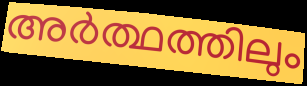
അർത്ഥത്തിലും